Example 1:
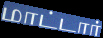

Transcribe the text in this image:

மாட்டார்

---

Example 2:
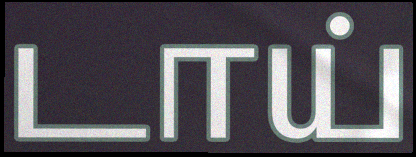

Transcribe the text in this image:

டாய்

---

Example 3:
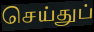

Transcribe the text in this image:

செய்துப்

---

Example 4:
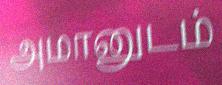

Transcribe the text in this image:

அமானுடம்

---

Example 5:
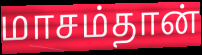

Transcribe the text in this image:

மாசம்தான்